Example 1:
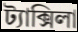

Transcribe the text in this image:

ট্যাক্সিলা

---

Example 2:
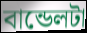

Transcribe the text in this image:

বান্ডেলটা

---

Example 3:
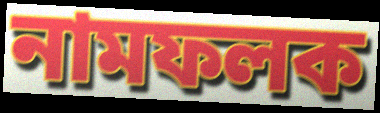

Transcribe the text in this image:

নামফলক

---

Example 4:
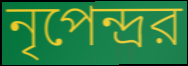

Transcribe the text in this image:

নৃপেন্দ্রর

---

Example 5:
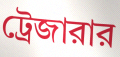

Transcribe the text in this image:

ট্রেজারার